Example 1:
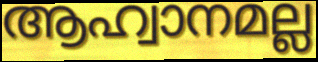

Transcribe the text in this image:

ആഹ്വാനമല്ല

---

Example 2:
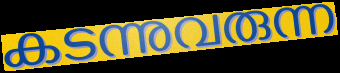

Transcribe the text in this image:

കടന്നുവരുന്ന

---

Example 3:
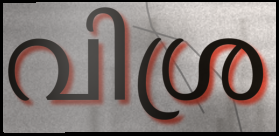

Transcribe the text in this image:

വിശ്ര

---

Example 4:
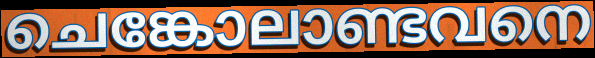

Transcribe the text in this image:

ചെങ്കോലാണ്ടവനെ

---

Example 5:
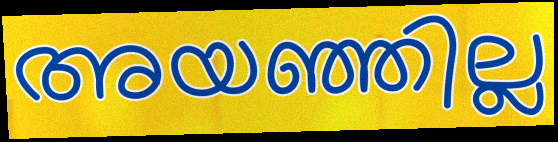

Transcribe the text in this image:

അയഞ്ഞില്ല